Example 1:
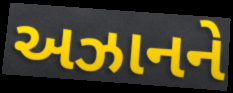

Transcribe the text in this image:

અઝાનને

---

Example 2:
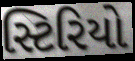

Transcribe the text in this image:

સ્ટિરિયો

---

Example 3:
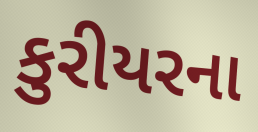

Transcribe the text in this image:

કુરીયરના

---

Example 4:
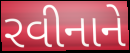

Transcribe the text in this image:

રવીનાને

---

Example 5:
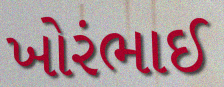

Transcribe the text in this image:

ખોરંભાઈ